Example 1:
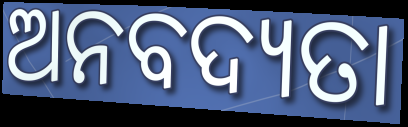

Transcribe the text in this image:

ଅନବଦ୍ୟତା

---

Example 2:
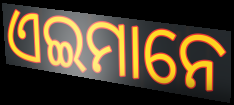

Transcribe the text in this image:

ଏଇମାନେ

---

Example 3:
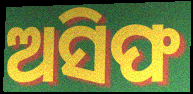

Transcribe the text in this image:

ଅସିଫ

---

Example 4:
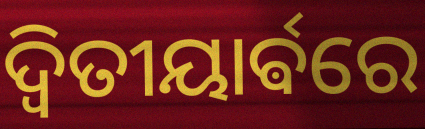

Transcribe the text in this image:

ଦ୍ଵିତୀୟାର୍ଵରେ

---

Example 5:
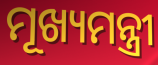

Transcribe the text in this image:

ମୂଖ୍ୟମନ୍ତ୍ରୀ